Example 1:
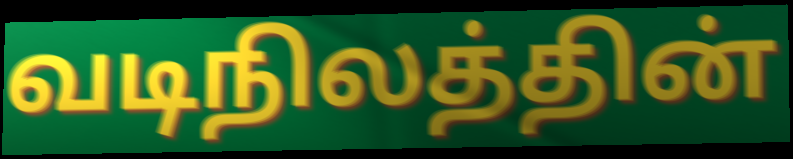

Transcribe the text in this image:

வடிநிலத்தின்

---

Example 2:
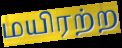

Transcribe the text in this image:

மயிரற்ற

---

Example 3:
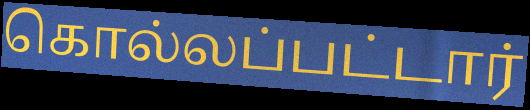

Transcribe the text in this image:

கொல்லப்பட்டார்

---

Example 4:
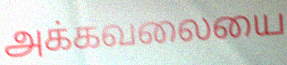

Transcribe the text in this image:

அக்கவலையை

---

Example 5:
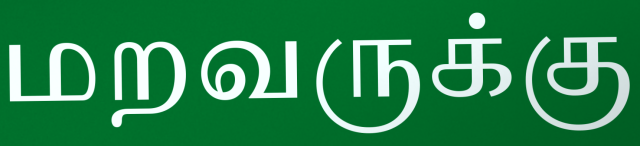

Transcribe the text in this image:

மறவருக்கு